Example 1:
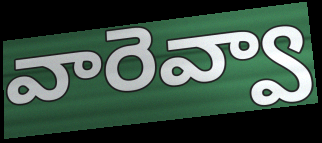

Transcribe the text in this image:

వారెవ్వా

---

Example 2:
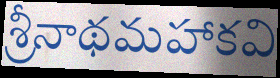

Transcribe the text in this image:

శ్రీనాథమహాకవి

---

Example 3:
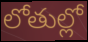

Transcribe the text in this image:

లోతుల్లో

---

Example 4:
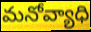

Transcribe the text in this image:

మనోవ్యాధి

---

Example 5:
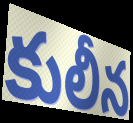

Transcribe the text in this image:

కులీన